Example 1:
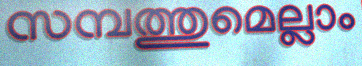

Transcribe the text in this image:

സമ്പത്തുമെല്ലാം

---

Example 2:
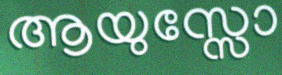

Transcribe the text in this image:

ആയുസ്സോ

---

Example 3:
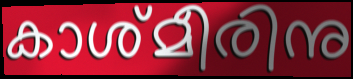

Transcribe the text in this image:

കാശ്മീരിനു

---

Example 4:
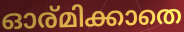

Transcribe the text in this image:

ഓര്മിക്കാതെ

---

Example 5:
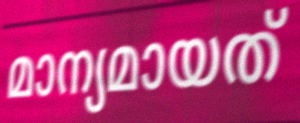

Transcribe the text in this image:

മാന്യമായത്